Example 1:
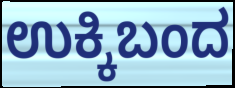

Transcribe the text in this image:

ಉಕ್ಕಿಬಂದ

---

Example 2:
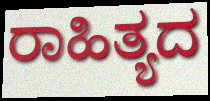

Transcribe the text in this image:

ರಾಹಿತ್ಯದ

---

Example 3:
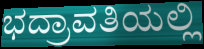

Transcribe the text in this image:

ಭದ್ರಾವತಿಯಲ್ಲಿ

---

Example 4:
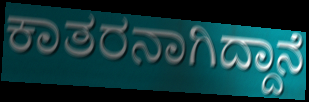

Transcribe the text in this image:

ಕಾತರನಾಗಿದ್ದಾನೆ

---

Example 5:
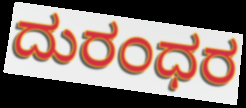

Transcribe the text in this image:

ದುರಂಧರ